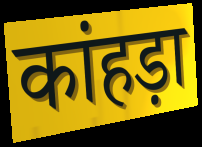
कांहड़ा